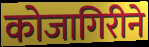
कोजागिरीने